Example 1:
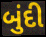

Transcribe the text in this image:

બુંદી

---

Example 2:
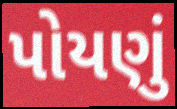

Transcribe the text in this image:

પોયણું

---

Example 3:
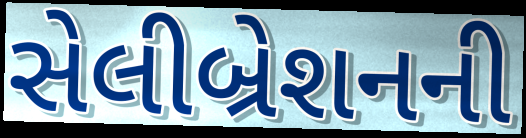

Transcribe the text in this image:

સેલીબ્રેશનની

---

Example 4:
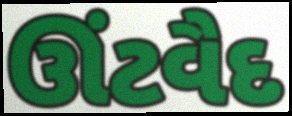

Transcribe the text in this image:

ઊંટવૈદ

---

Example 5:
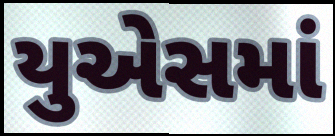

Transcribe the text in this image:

યુએસમાં